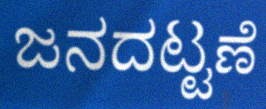
ಜನದಟ್ಟಣೆ